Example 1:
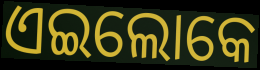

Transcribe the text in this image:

ଏଇଲୋକେ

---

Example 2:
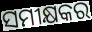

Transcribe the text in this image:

ସମୀକ୍ଷକର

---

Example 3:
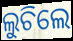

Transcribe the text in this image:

ଲୁଚିଲେ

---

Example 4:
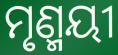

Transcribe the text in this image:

ମୃଣ୍ମୟୀ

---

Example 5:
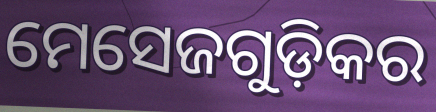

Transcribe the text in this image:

ମେସେଜଗୁଡ଼ିକର